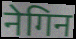
नेगिन